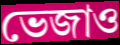
ভেজাও